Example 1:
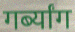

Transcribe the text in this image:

गर्ब्यांग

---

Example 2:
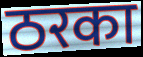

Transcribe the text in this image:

ठरका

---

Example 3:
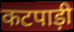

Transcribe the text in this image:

कटपाड़ी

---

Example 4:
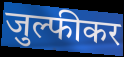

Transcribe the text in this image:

जुल्फीकर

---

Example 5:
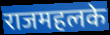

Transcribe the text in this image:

राजमहलके